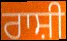
ਰਾਸ਼ੀ